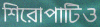
শিরোপাটিও